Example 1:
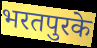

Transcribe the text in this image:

भरतपुरके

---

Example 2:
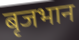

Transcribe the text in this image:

बृजभान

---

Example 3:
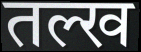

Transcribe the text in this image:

तल्‍ख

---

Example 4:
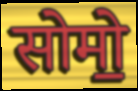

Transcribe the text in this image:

सोमो॒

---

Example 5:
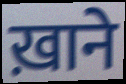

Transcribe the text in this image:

ख़ाने